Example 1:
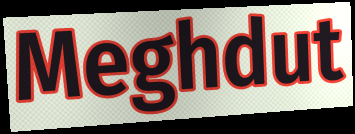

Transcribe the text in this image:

Meghdut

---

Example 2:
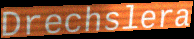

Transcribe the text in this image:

Drechslera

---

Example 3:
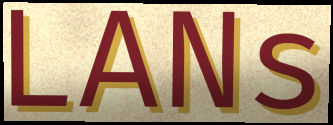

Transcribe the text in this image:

LANs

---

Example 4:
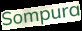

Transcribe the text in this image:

Sompura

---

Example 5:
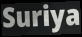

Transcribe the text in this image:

Suriya